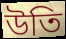
উতি